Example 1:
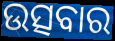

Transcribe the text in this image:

ଉତ୍ସବାର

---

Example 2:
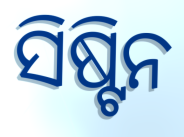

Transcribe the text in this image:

ସିଷ୍ଟିନ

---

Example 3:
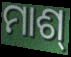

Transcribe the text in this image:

ମାଶ୍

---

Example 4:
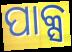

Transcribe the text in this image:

ପାକ୍ସ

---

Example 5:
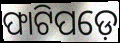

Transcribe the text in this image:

ଫାଟିପଡ଼େ